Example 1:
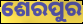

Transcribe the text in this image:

ଶେରପୁର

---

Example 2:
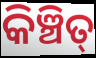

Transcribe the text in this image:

କିଞ୍ଚିତ୍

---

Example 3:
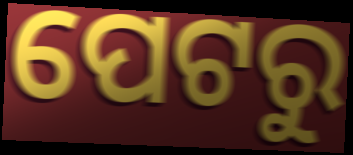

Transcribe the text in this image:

ପେଟରୁ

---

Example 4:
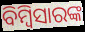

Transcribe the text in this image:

ବିମ୍ବିସାରଙ୍କ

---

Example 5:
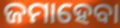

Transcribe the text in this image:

ଜମାହେବା